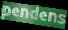
pendens